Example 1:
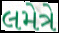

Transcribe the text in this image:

લમેત્રે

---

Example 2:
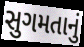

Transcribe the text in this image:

સુગમતાનું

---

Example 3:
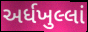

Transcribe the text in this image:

અર્ધખુલ્લાં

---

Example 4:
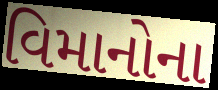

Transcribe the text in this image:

વિમાનોના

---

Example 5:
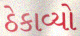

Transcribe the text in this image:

ઠેકાવ્યો